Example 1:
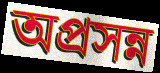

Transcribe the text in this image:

অপ্রসন্ন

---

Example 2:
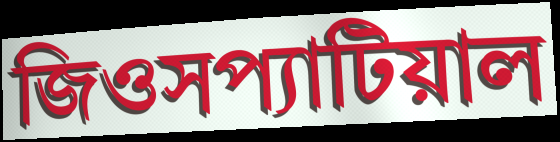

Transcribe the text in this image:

জিওসপ্যাটিয়াল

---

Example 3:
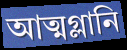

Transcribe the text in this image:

আত্মগ্লানি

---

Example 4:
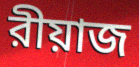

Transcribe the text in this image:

রীয়াজ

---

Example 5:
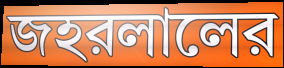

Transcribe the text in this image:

জহরলালের